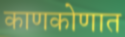
काणकोणात